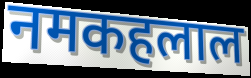
नमकहलाल